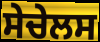
ਸੇਚੇਲਸ